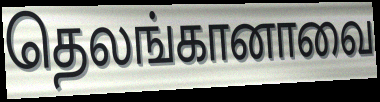
தெலங்கானாவை